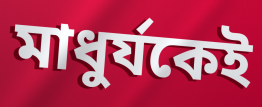
মাধুর্যকেই